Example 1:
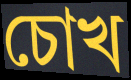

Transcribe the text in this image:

চোখ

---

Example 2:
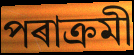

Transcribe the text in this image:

পৰাক্ৰমী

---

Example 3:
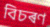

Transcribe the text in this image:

বিচৰণ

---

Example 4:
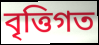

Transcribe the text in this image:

বৃত্তিগত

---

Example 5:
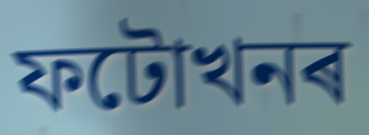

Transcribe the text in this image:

ফটোখনৰ